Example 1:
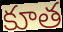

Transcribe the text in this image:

కూత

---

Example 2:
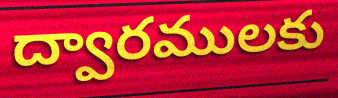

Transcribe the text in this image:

ద్వారములకు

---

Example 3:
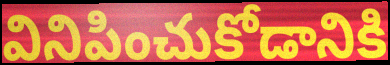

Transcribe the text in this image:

వినిపించుకోడానికి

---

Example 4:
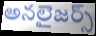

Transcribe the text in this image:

అనలైజర్స్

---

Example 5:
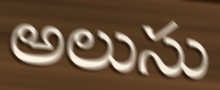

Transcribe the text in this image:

అలుసు